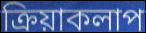
ক্রিয়াকলাপ